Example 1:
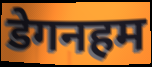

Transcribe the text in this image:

डेगनहम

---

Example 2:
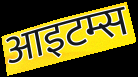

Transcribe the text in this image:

आइटम्‍स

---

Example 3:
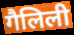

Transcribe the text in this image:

गैलिली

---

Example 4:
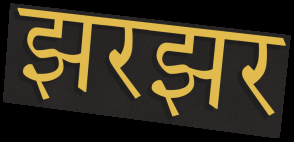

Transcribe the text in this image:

झरझर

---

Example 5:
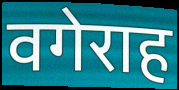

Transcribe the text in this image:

वगेराह